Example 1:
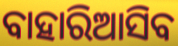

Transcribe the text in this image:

ବାହାରିଆସିବ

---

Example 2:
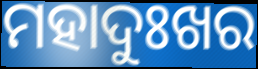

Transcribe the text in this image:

ମହାଦୁଃଖର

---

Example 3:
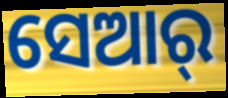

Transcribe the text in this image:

ସେଆର୍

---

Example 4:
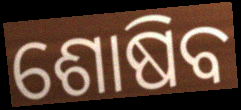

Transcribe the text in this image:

ଶୋଷିବ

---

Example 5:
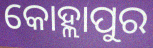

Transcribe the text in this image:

କୋହ୍ଲାପୁର